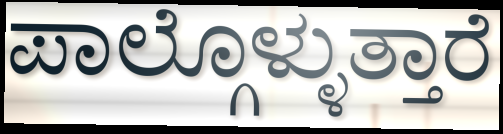
ಪಾಲ್ಗೊಳ್ಳುತ್ತಾರೆ